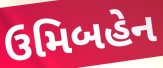
ઉમિબહેન